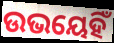
ଉଭୟେହିଁ